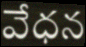
వేధన